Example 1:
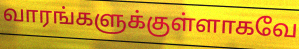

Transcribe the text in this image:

வாரங்களுக்குள்ளாகவே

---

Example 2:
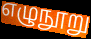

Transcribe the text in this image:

எழுநூறு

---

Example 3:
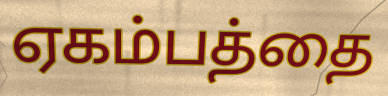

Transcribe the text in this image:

ஏகம்பத்தை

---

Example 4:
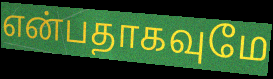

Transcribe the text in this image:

என்பதாகவுமே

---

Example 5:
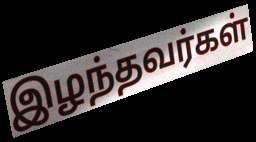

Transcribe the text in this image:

இழந்தவர்கள்